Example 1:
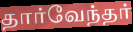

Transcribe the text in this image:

தார்வேந்தர்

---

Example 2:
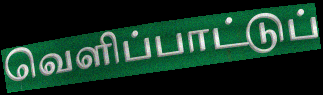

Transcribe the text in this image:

வெளிப்பாட்டுப்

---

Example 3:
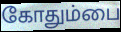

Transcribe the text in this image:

கோதும்பை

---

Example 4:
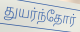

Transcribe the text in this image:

துயர்ந்தோர்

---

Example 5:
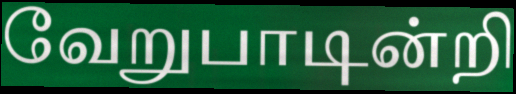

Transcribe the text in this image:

வேறுபாடின்றி